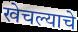
खेचल्याचे